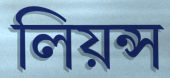
লিয়ন্স